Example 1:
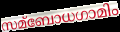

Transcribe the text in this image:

സമ്ബോധഗാമിം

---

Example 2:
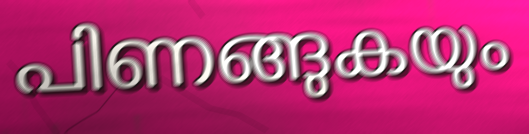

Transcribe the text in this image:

പിണങ്ങുകയും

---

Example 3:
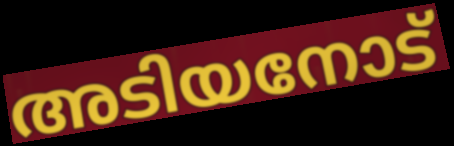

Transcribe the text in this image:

അടിയനോട്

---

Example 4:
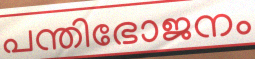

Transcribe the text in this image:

പന്തിഭോജനം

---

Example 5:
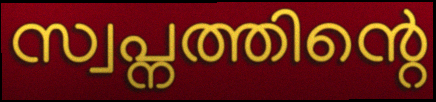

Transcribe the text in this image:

സ്വപ്നത്തിന്റെ